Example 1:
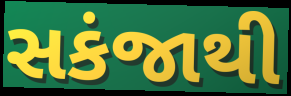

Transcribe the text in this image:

સકંજાથી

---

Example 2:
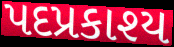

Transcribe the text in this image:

પદપ્રકાશ્ય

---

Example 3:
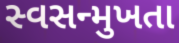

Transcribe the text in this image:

સ્વસન્મુખતા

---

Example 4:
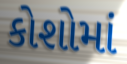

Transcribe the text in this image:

કોશોમાં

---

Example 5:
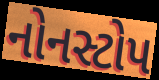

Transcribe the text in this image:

નોનસ્ટોપ